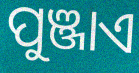
ପୁଞ୍ଜାଏ